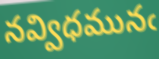
నవ్విధమునఁ